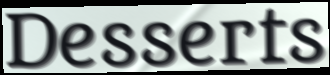
Desserts